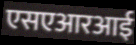
एसएआरआई